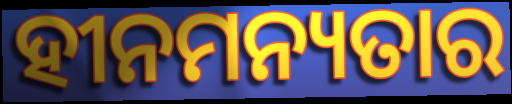
ହୀନମନ୍ୟତାର